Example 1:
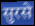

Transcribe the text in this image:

सुरसे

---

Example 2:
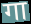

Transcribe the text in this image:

गा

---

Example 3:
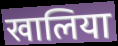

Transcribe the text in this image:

खालिया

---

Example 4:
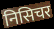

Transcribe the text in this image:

निसिचर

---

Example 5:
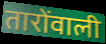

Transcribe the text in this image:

तारोंवाली